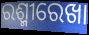
ରଶ୍ମୀରେଖା